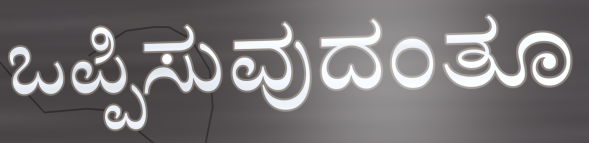
ಒಪ್ಪಿಸುವುದಂತೂ